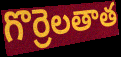
గొర్రెలతాత